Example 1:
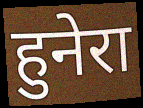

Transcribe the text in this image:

हुनेरा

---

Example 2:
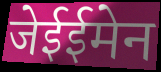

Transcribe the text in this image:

जेईईमेन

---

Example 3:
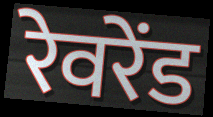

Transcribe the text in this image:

रेवरेंड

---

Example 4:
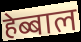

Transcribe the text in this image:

हेब्बाल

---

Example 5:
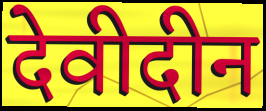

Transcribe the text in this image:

देवीदीन